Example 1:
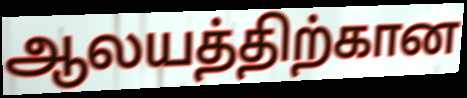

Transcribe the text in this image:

ஆலயத்திற்கான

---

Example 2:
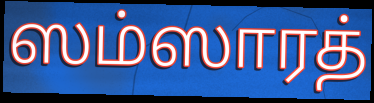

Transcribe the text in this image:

ஸம்ஸாரத்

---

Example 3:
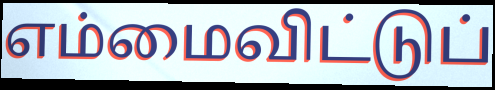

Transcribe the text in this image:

எம்மைவிட்டுப்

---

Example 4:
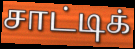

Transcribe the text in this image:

சாட்டிக்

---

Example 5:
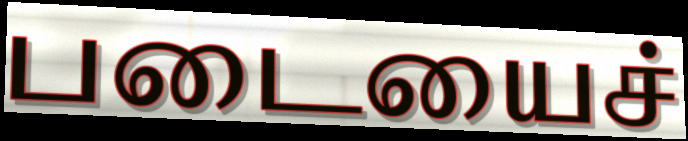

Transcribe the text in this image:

படையைச்